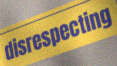
disrespecting